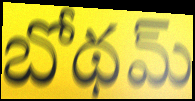
బోథమ్